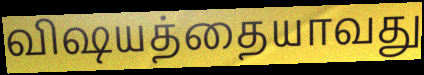
விஷயத்தையாவது